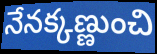
నేనక్కణ్ణుంచి